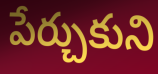
పేర్చుకుని